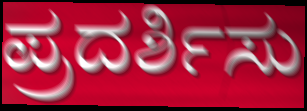
ಪ್ರದರ್ಶಿಸು